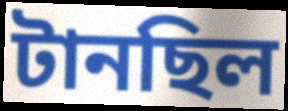
টানছিল